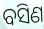
ବସିଣ